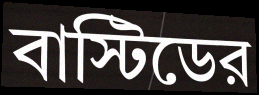
বাস্টিডের